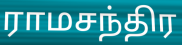
ராமசந்திர